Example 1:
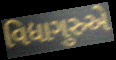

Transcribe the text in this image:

વિદ્યાગુરુએ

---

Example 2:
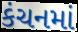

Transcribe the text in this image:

કંચનમાં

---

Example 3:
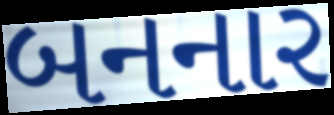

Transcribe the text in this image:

બનનાર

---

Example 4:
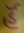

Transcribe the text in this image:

ર્હૅ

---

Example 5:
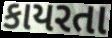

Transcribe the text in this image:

કાયરતા